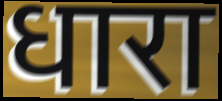
धारा